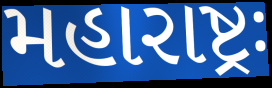
મહારાષ્ટ્રઃ